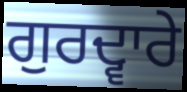
ਗੁਰਦ੍ਵਾਰੇ